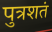
पुत्रशतं